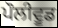
ਪੌਲੀਵੂਡ